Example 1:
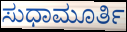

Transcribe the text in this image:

ಸುಧಾಮೂರ್ತಿ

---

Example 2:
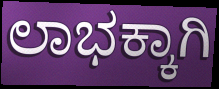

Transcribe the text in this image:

ಲಾಭಕ್ಕಾಗಿ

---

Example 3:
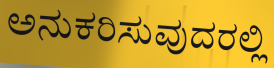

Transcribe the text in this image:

ಅನುಕರಿಸುವುದರಲ್ಲಿ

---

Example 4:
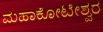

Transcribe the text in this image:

ಮಹಾಕೋಟೇಶ್ವರ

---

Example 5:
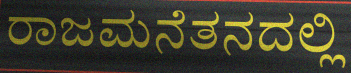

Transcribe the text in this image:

ರಾಜಮನೆತನದಲ್ಲಿ